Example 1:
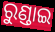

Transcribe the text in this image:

ରୁଣ୍ଡାଇ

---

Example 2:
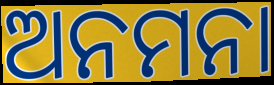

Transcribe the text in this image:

ଅନମନା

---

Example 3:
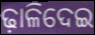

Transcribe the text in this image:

ଢ଼ାଳିଦେଇ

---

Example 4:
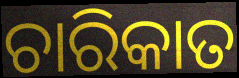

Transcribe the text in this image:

ଚାରିକାତ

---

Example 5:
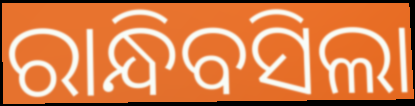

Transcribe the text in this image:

ରାନ୍ଧିବସିଲା